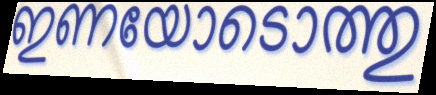
ഇണയോടൊത്തു